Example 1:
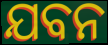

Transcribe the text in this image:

ଯବନ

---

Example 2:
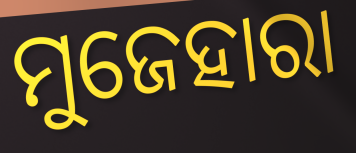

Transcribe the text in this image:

ମୁଜେହାରା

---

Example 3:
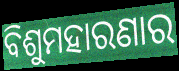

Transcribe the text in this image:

ବିଶୁମହାରଣାର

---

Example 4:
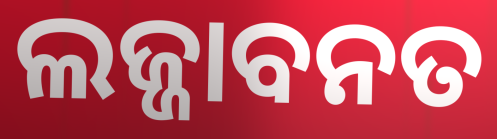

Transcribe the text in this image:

ଲଜ୍ଜାବନତ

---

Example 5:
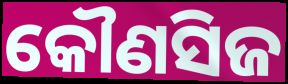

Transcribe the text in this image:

କୌଣସିଜ